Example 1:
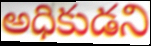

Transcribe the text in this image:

అధికుడని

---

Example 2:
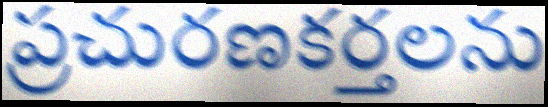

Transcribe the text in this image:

ప్రచురణకర్తలను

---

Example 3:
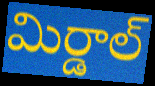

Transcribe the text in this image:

మిర్డాల్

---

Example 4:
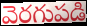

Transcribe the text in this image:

వెరగుపడి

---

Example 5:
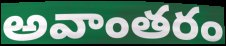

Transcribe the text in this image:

అవాంతరం